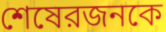
শেষেরজনকে